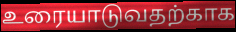
உரையாடுவதற்காக